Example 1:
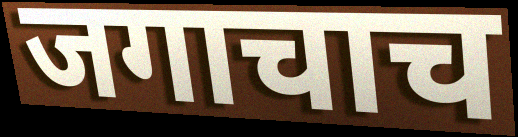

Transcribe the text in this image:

जगाचाच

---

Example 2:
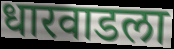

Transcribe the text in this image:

धारवाडला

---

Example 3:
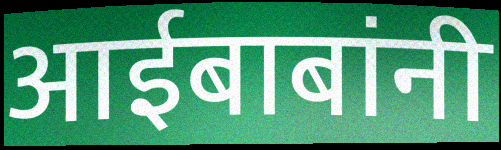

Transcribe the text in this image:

आईबाबांनी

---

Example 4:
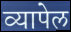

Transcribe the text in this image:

व्यापेल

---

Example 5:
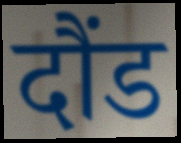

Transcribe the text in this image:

दौंड